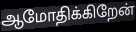
ஆமோதிக்கிறேன்